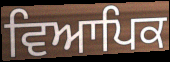
ਵਿਆਪਿਕ